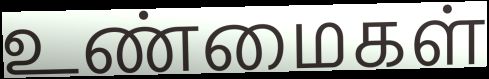
உண்மைகள்